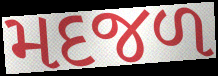
મદજળ